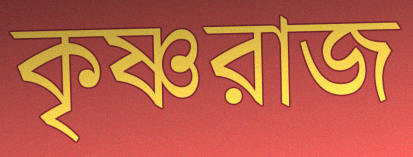
কৃষ্ণরাজ